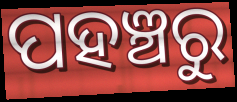
ପହଞ୍ଚରୁ